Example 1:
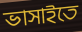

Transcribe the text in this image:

ভাসাইতে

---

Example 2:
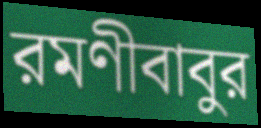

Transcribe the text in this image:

রমণীবাবুর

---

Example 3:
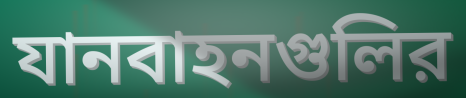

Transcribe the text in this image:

যানবাহনগুলির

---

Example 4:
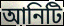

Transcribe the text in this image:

আনিটি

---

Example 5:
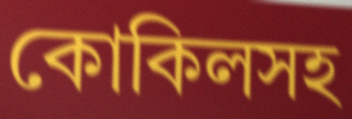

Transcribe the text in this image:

কোকিলসহ